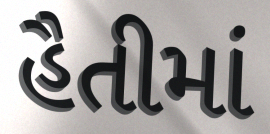
હૈતીમાં